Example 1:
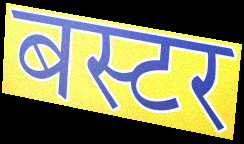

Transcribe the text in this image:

बस्टर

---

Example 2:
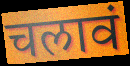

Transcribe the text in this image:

चलावं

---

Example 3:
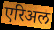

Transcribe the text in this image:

एरिअल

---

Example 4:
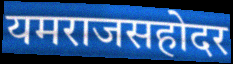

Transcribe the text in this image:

यमराजसहोदर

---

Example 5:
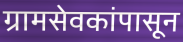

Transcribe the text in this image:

ग्रामसेवकांपासून